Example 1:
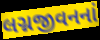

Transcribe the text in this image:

લગ્નજીવનનાં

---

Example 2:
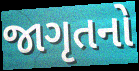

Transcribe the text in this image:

જાગૃતનો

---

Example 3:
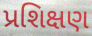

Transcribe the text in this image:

પ્રશિક્ષણ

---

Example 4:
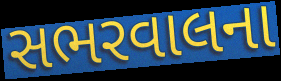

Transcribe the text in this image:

સભરવાલના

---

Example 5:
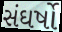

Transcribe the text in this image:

સંઘર્ષો